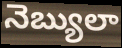
నెబ్యులా